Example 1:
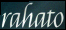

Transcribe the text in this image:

rahato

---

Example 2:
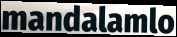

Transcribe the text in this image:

mandalamlo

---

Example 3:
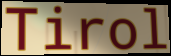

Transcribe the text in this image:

Tirol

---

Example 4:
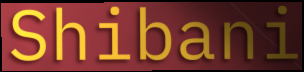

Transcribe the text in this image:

Shibani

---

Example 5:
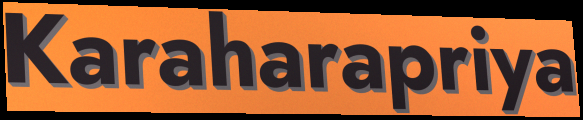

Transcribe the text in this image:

Karaharapriya